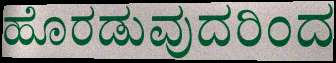
ಹೊರಡುವುದರಿಂದ